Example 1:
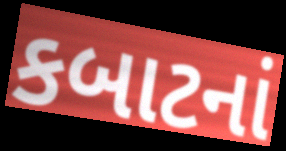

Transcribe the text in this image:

કબાટનાં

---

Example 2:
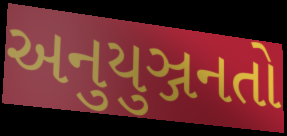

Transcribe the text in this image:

અનુયુઞ્જનતો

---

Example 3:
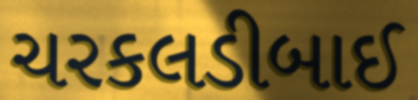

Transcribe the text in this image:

ચરકલડીબાઈ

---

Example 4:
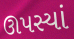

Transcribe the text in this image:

ઊપસ્યાં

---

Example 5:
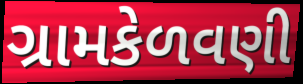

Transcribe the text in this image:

ગ્રામકેળવણી